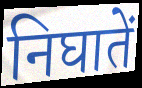
निघातें